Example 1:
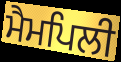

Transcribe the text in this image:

ਮੈਮਪਿਲੀ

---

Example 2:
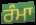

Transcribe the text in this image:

ਰੰਮਾ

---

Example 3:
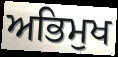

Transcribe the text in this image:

ਅਭਿਮੁਖ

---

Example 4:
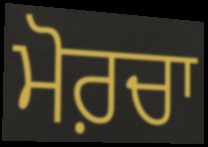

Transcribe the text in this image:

ਮੋਰ਼ਚਾ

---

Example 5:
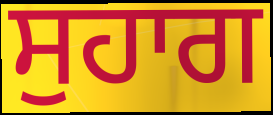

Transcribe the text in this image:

ਸੁਹਾਗ